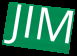
JIM